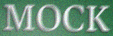
MOCK